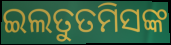
ଇଲତୁତମିସଙ୍କ